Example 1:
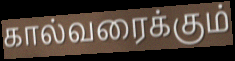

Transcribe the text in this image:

கால்வரைக்கும்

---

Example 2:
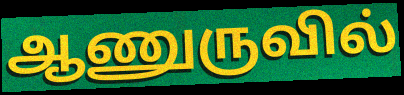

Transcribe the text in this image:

ஆணுருவில்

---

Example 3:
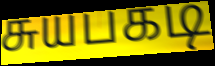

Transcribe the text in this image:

சுயபகடி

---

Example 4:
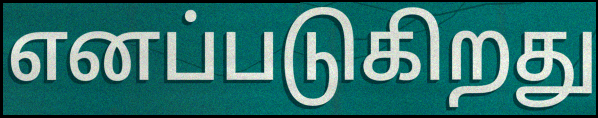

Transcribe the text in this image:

எனப்படுகிறது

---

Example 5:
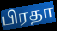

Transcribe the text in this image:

பிரதா